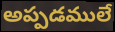
అప్పడములే